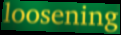
loosening